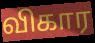
விகார